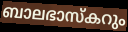
ബാലഭാസ്കറും